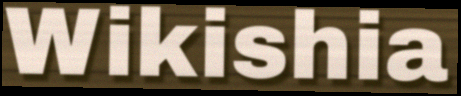
Wikishia